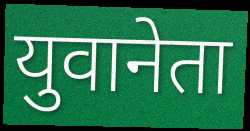
युवानेता